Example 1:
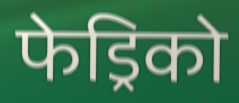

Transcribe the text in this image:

फेड्रिको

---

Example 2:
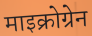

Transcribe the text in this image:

माइक्रोग्रेन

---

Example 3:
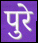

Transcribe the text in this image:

पुरे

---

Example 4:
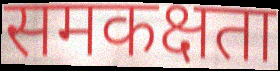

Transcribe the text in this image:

समकक्षता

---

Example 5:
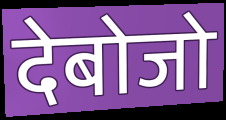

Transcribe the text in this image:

देबोजो